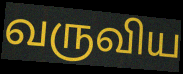
வருவிய